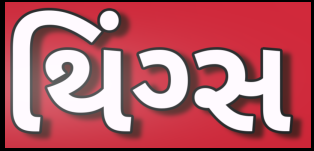
થિંગ્સ